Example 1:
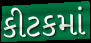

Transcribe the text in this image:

કીટકમાં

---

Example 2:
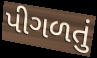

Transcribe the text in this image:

પીગળતું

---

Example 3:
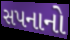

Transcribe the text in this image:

સપનાનો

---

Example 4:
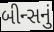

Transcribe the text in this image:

બીન્સનું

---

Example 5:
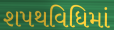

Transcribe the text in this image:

શપથવિધિમાં